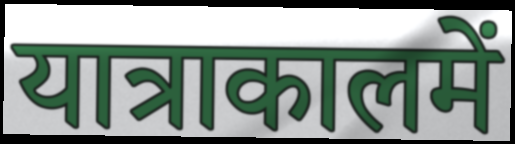
यात्राकालमें